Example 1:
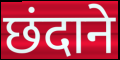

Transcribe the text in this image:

छंदाने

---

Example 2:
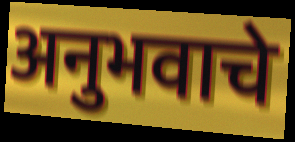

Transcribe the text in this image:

अनुभवाचे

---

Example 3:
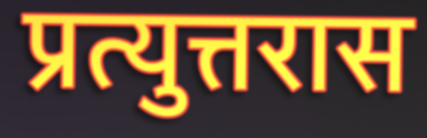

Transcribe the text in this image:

प्रत्युत्तरास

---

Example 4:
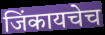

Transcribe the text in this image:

जिंकायचेच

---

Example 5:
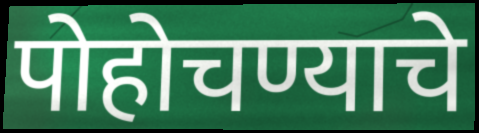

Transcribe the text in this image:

पोहोचण्याचे